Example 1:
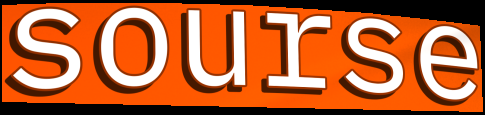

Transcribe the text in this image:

sourse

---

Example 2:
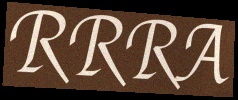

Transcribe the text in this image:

RRRA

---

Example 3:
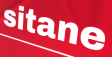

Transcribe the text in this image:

sitane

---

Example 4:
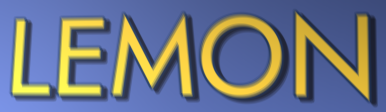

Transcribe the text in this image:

LEMON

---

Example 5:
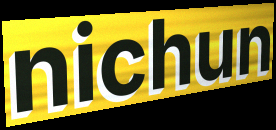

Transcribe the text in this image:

nichun